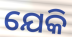
ଯେକି